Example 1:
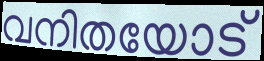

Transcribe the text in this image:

വനിതയോട്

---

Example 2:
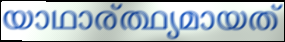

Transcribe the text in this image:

യാഥാര്ത്ഥ്യമായത്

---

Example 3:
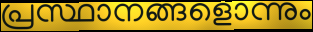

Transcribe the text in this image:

പ്രസ്ഥാനങ്ങളൊന്നും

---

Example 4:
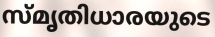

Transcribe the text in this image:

സ്മൃതിധാരയുടെ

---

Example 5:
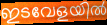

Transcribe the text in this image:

ഇടവേളയിൽ